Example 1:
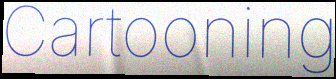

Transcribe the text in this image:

Cartooning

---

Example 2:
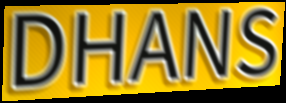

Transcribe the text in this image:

DHANS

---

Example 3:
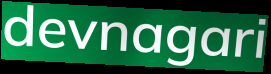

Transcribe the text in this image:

devnagari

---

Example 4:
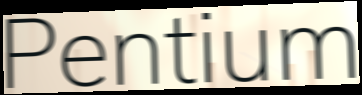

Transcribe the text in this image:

Pentium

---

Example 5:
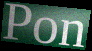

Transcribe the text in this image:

Pon